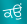
ਕਉਂ